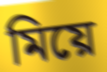
মিয়ে